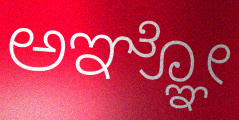
ಅಞ್ಞೋ